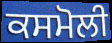
ਕਸਮੋਲੀ